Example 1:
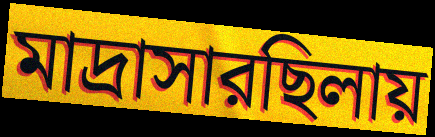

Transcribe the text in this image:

মাদ্রাসারছিলায়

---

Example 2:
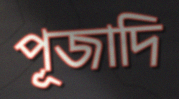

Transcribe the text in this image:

পূজাদি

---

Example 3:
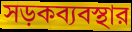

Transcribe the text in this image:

সড়কব্যবস্থার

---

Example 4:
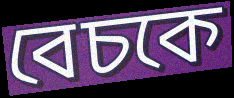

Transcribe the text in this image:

বেচকে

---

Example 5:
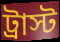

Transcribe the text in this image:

ট্রাস্ট